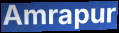
Amrapur